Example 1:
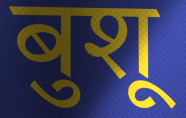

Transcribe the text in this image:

बुशू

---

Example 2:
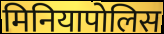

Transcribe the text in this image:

मिनियापोलिस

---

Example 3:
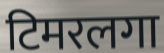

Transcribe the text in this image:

टिमरलगा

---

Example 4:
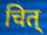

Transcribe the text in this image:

चित्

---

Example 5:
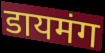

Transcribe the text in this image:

डायमंग